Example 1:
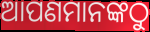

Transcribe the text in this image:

ଆପଣମାନଙ୍କଠୁ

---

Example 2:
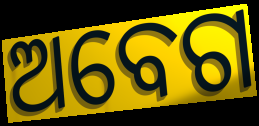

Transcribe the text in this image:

ଅବେଗ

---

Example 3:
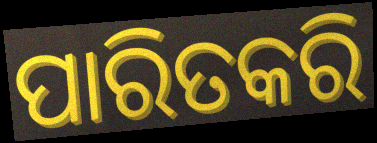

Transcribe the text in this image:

ପାରିତକରି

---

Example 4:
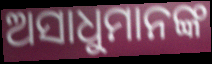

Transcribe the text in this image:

ଅସାଧୁମାନଙ୍କ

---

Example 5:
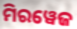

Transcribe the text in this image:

ମିରୱେଜ